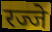
रज्जे